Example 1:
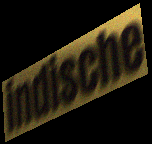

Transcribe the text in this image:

indische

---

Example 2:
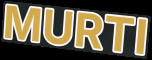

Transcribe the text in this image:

MURTI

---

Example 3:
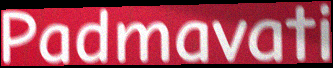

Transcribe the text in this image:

Padmavati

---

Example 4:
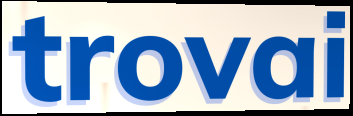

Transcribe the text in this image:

trovai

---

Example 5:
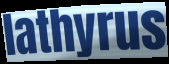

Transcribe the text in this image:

lathyrus